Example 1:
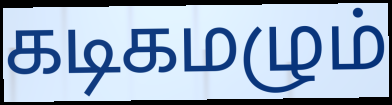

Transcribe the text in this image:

கடிகமழும்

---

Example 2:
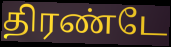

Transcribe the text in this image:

திரண்டே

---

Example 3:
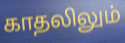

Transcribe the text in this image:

காதலிலும்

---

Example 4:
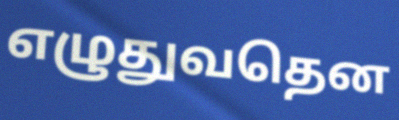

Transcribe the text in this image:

எழுதுவதென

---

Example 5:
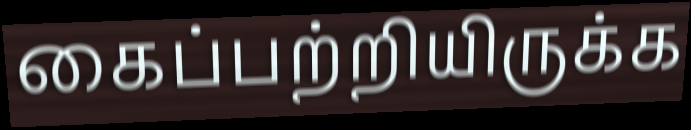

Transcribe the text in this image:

கைப்பற்றியிருக்க